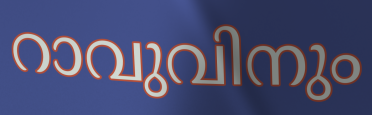
റാവുവിനും